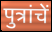
पुत्रांचें